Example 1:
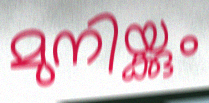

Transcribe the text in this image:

മുനിയ്ക്കും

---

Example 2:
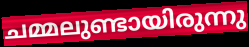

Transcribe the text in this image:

ചമ്മലുണ്ടായിരുന്നു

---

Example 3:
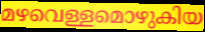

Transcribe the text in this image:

മഴവെള്ളമൊഴുകിയ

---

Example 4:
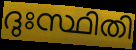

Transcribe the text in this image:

ദുഃസ്ഥിതി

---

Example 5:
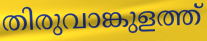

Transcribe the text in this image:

തിരുവാങ്കുളത്ത്